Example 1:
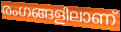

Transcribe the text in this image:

രംഗങ്ങളിലാണ്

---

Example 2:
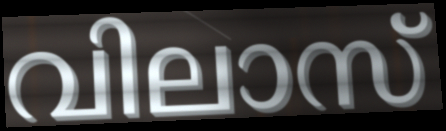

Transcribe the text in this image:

വിലാസ്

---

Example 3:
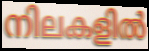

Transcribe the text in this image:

നിലകളിൽ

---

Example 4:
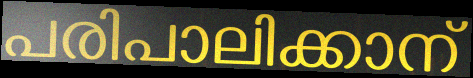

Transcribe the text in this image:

പരിപാലിക്കാന്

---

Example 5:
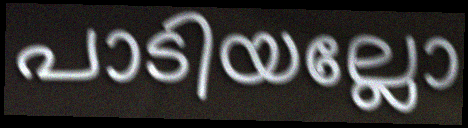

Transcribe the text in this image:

പാടിയല്ലോ